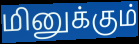
மினுக்கும்